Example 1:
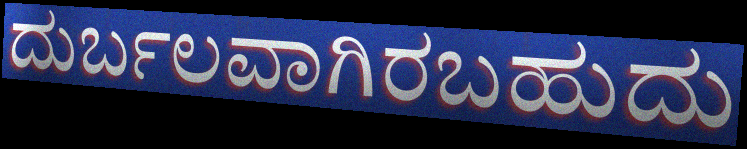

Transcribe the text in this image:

ದುರ್ಬಲವಾಗಿರಬಹುದು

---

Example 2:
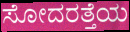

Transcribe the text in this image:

ಸೋದರತ್ತೆಯ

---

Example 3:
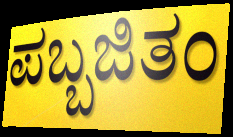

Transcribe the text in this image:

ಪಬ್ಬಜಿತಂ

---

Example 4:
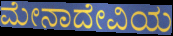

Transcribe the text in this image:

ಮೇನಾದೇವಿಯ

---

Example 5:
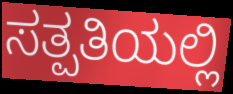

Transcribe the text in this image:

ಸತ್ಪತಿಯಲ್ಲಿ